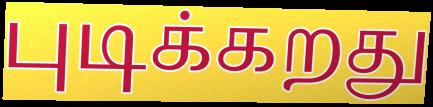
புடிக்கறது